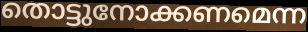
തൊട്ടുനോക്കണമെന്ന